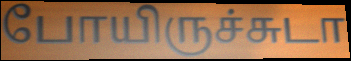
போயிருச்சுடா